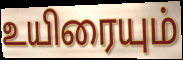
உயிரையும்